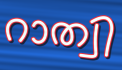
റാത്വി